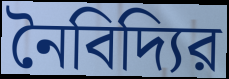
নৈবিদ্যির